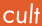
cult